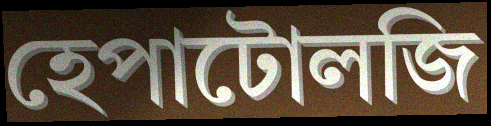
হেপাটোলজি